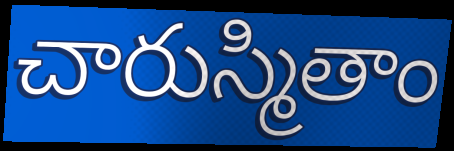
చారుస్మితాం